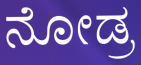
ನೋಡ್ರ